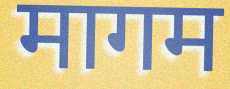
मागम